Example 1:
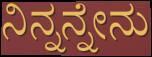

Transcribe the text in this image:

ನಿನ್ನನ್ನೇನು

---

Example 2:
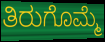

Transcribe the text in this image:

ತಿರುಗೊಮ್ಮೆ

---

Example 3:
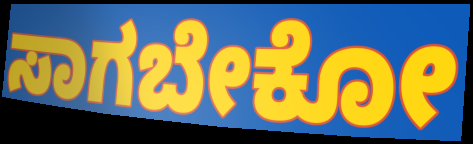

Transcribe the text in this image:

ಸಾಗಬೇಕೋ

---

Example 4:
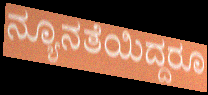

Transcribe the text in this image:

ನ್ಯೂನತೆಯಿದ್ದರೂ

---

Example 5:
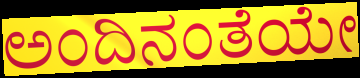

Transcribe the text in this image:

ಅಂದಿನಂತೆಯೇ